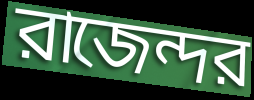
রাজেন্দর